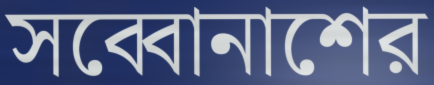
সব্বোনাশের